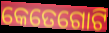
କେତେଗୋଟି